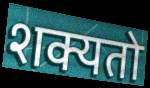
शक्यतो